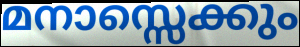
മനാസ്സെക്കും